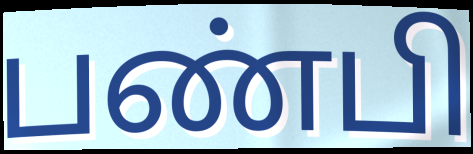
பண்பி